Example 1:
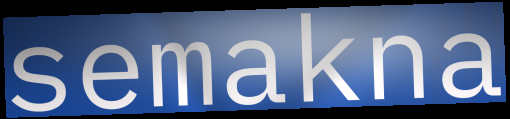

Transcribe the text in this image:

semakna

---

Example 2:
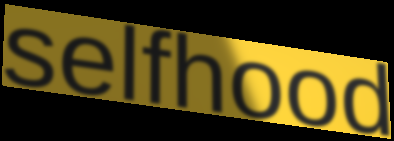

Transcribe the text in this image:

selfhood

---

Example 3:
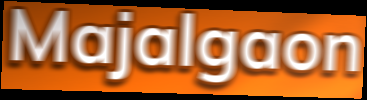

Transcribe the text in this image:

Majalgaon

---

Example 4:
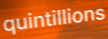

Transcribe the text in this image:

quintillions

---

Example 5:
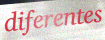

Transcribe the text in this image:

diferentes